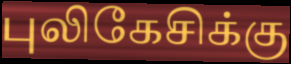
புலிகேசிக்கு